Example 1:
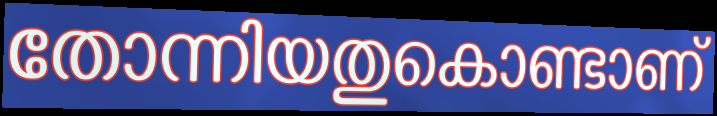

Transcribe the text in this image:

തോന്നിയതുകൊണ്ടാണ്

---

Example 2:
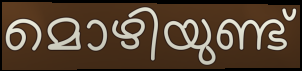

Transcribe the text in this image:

മൊഴിയുണ്ട്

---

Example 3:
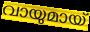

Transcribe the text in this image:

വായുമായ്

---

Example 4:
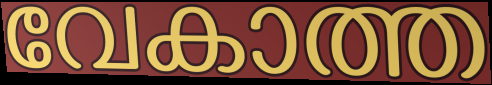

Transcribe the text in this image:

വേകാത്ത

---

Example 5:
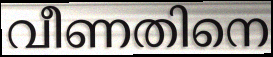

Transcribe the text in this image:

വീണതിനെ